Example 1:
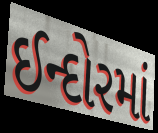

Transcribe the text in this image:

ઈન્દોરમાં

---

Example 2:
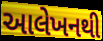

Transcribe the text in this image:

આલેખનથી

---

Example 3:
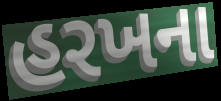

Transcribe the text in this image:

હરખના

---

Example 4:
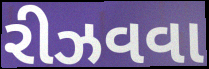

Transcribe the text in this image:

રીઝવવા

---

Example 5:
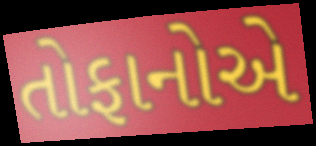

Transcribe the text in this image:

તોફાનોએ